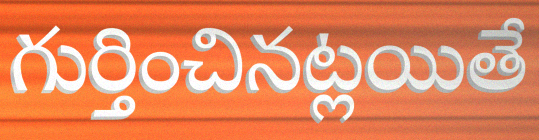
గుర్తించినట్లయితే